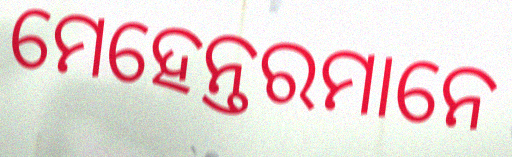
ମେହେନ୍ତରମାନେ